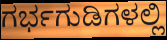
ಗರ್ಭಗುಡಿಗಳಲ್ಲಿ